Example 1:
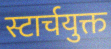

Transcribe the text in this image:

स्टार्चयुक्त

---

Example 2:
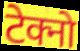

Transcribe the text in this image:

टेक्‍नो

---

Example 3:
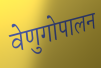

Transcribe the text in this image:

वेणुगोपालन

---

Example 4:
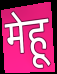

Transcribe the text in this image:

मेहू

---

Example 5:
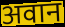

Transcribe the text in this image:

अवान